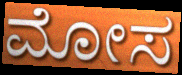
ಮೋಸ